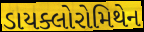
ડાયક્લોરોમિથેન